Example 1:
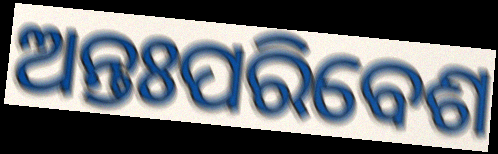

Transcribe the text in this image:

ଅନ୍ତଃପରିବେଶ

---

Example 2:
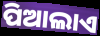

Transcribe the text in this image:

ପିଆଲାଏ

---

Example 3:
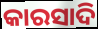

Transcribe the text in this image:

କାରସାଦି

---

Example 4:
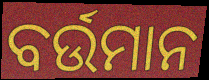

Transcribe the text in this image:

ବର୍ଉମାନ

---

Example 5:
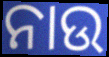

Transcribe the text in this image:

ନାଉ